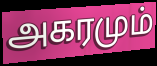
அகரமும்